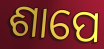
ଶାପେ